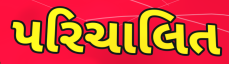
પરિચાલિત